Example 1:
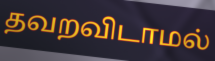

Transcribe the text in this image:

தவறவிடாமல்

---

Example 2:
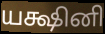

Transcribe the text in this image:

யக்ஷினி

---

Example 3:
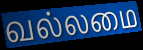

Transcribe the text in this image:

வல்லமை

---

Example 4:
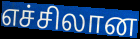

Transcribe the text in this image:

எச்சிலான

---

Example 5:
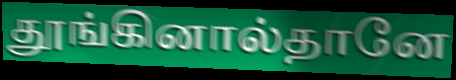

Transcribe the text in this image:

தூங்கினால்தானே